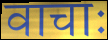
वाचाः